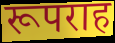
रूपराह